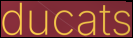
ducats